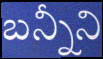
బన్నీని